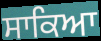
ਸਾਕਿਆ